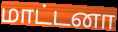
மாட்டனா